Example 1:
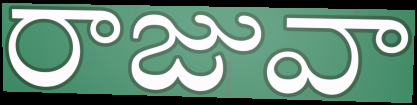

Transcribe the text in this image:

రాజువా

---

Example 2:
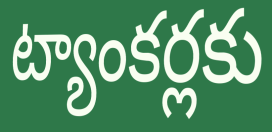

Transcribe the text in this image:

ట్యాంకర్లకు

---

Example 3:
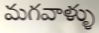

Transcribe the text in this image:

మగవాళ్ళు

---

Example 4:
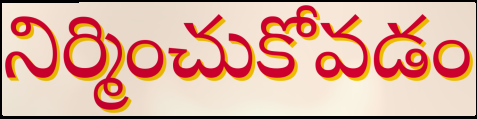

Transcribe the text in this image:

నిర్మించుకోవడం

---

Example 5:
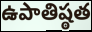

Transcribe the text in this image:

ఉపాతిష్ఠత